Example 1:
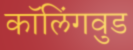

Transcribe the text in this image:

कॉलिंगवुड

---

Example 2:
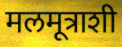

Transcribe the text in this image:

मलमूत्राशी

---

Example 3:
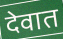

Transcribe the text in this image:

देवात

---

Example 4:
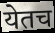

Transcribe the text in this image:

येतच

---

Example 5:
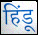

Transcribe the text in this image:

हिंडू